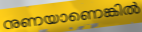
നുണയാണെങ്കിൽ